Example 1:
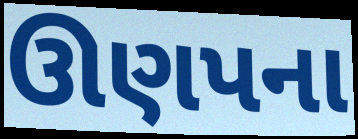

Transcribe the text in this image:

ઊણપના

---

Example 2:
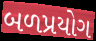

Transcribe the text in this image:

બળપ્રયોગ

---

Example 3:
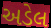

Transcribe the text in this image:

અડેલ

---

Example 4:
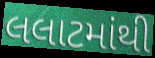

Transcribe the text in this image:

લલાટમાંથી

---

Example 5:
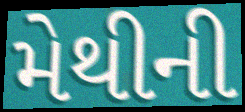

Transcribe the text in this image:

મેથીની